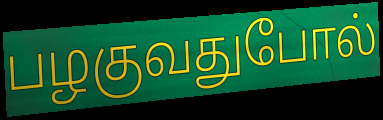
பழகுவதுபோல்